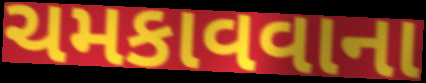
ચમકાવવાના